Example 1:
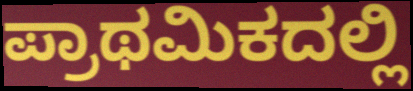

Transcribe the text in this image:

ಪ್ರಾಥಮಿಕದಲ್ಲಿ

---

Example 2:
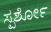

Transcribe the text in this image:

ಸ್ಪರ್ಶೋ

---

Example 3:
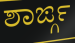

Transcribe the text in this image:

ಶಾರ್ಙ್ಗ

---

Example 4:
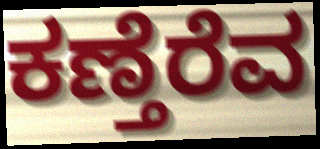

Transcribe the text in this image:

ಕಣ್ತೆರೆವ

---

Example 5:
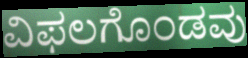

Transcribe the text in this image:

ವಿಫಲಗೊಂಡವು